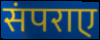
संपराए